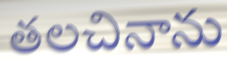
తలచినాను